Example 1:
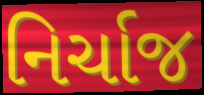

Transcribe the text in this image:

નિર્ચાજ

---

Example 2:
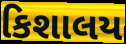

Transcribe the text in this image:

કિશાલય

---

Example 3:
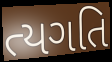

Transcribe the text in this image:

ત્યગતિ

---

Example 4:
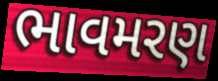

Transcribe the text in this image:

ભાવમરણ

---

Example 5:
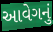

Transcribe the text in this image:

આવેગનું